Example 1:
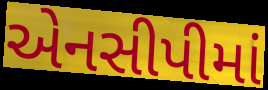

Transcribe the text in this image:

એનસીપીમાં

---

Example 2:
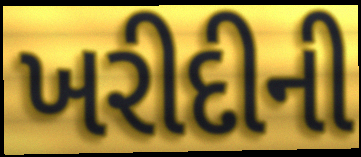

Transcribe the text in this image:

ખરીદીની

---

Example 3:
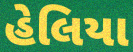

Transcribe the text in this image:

હેલિયા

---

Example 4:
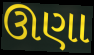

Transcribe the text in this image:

ઊણા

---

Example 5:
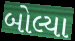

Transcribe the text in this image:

બોલ્યા